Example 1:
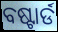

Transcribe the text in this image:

ବଷ୍ଟାର୍ଡ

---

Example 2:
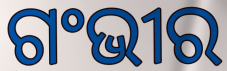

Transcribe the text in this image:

ଗଂଭୀର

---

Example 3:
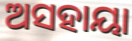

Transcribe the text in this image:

ଅସହାୟା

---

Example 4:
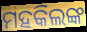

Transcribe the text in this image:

ମହକିଲଙ୍କ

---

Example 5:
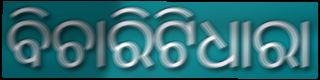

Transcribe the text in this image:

ବିଚାରିଟିଧାରା